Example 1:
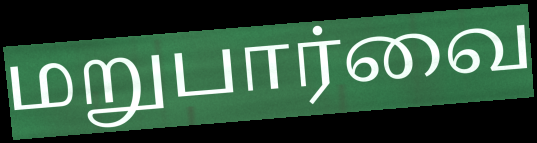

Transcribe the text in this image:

மறுபார்வை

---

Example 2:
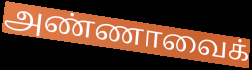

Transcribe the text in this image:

அண்ணாவைக்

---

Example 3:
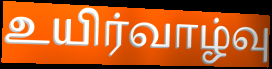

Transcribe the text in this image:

உயிர்வாழ்வு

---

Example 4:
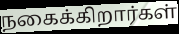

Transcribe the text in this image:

நகைக்கிறார்கள்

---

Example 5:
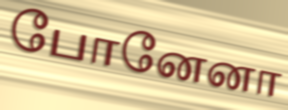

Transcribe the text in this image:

போனேனா